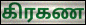
கிரகண